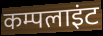
कम्पलाइंट